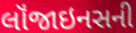
લૉંજાઇનસની